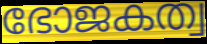
ഭോജകത്വ